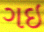
ગઇ